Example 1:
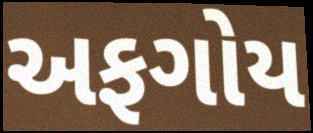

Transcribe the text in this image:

અફગોય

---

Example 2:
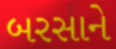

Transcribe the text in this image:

બરસાને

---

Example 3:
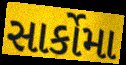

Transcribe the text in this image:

સાર્કોમા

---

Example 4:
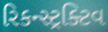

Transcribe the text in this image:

રિકન્સ્ટ્રક્ટિવ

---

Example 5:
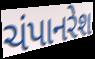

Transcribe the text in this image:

ચંપાનરેશ